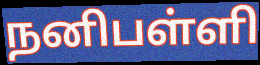
நனிபள்ளி